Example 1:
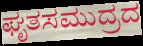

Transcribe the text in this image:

ಘೃತಸಮುದ್ರದ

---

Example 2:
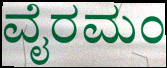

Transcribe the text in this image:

ವೈರಮಂ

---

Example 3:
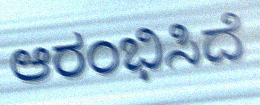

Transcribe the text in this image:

ಆರಂಭಿಸಿದೆ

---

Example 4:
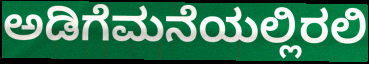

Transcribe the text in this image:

ಅಡಿಗೆಮನೆಯಲ್ಲಿರಲಿ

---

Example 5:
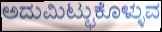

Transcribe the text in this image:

ಅದುಮಿಟ್ಟುಕೊಳ್ಳುವ